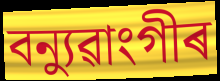
বন্যুৱাংগীৰ